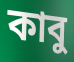
কাবু